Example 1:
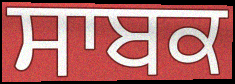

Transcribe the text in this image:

ਸਾਬਕ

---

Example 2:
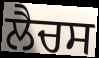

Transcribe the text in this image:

ਲੈਚਸ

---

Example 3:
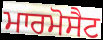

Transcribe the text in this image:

ਮਾਰਮੋਸੈਟ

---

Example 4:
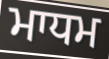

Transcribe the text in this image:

ਮਾਧਮ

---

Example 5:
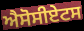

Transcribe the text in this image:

ਐਸੋਸੀਏਟਸ